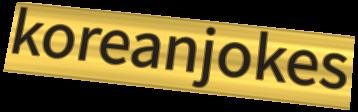
koreanjokes